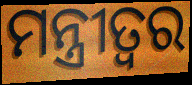
ମନ୍ତ୍ରୀତ୍ୱର